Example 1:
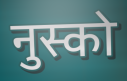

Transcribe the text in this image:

नुस्को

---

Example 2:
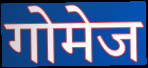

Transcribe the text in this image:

गोमेज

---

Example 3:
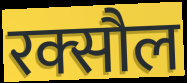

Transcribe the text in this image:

रक्‍सौल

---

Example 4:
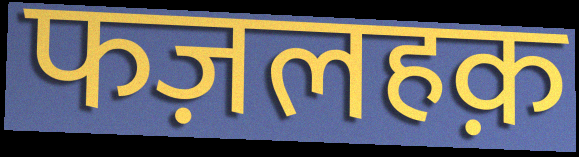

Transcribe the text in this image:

फज़लहक़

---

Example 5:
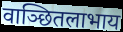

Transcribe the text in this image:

वाञ्छितलाभाय